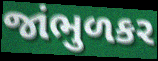
જાંભુળકર